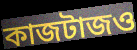
কাজটাজও